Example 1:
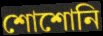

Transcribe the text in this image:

শোশোনি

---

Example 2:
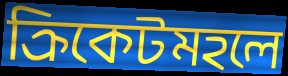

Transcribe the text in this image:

ক্রিকেটমহলে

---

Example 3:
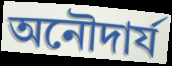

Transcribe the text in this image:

অনৌদার্য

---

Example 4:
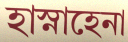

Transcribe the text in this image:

হাস্নাহেনা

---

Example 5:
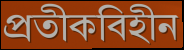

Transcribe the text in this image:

প্রতীকবিহীন